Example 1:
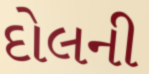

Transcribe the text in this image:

દોલની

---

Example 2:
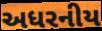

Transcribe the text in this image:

અધરનીય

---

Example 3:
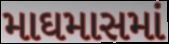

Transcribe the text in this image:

માઘમાસમાં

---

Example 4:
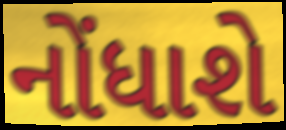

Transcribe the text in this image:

નોંધાશે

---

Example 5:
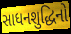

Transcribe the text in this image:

સાધનશુદ્ધિનો